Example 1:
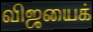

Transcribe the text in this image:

விஜயைக்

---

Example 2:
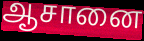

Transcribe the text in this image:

ஆசானை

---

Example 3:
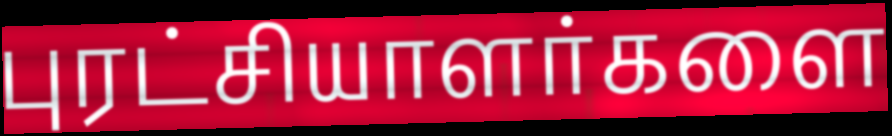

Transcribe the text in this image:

புரட்சியாளர்களை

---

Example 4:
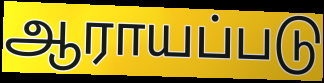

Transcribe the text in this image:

ஆராயப்படு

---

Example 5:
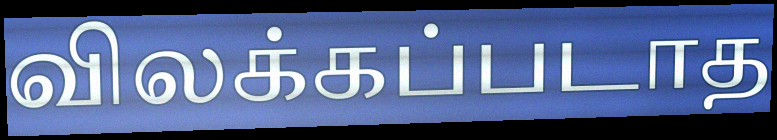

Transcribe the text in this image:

விலக்கப்படாத